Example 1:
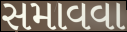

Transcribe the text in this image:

સમાવવા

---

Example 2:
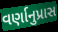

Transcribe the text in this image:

વર્ણાનુપ્રાસ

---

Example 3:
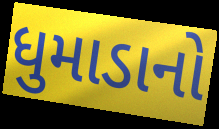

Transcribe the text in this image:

ધુમાડાનો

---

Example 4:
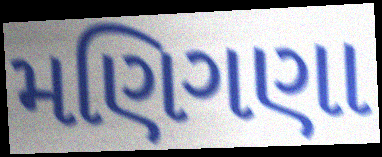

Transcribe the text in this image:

મણિગણા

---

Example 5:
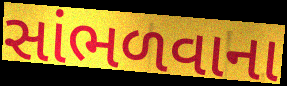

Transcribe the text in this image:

સાંભળવાના